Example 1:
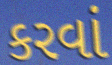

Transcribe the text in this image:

કરવાં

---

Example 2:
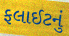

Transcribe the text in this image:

ફલાઈટનું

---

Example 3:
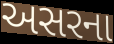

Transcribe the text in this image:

અસરના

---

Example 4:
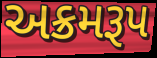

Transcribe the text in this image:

અક્રમરૂપ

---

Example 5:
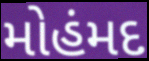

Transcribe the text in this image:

મોહંમદ